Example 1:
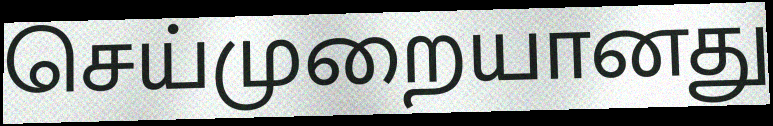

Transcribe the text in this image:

செய்முறையானது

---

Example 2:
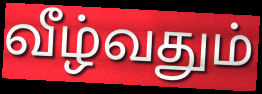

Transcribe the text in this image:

வீழ்வதும்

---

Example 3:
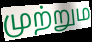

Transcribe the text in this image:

முற்றும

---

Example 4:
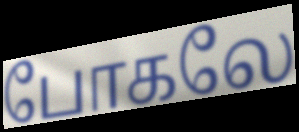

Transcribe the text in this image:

போகலே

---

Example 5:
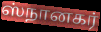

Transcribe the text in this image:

ஸ்நானகர்